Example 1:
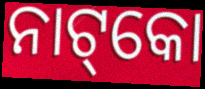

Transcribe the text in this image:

ନାଟ୍‌କୋ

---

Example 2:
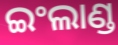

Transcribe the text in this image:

ଇଂଲାଣ୍ଡ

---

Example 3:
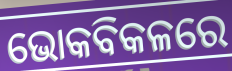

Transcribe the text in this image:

ଭୋକବିକଳରେ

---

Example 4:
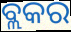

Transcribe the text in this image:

ବ୍ଲକର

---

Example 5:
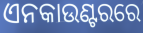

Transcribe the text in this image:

ଏନକାଉଣ୍ଟରରେ